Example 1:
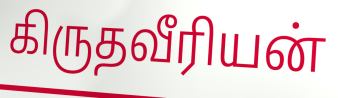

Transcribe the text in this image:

கிருதவீரியன்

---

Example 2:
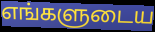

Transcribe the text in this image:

எங்களுடைய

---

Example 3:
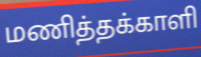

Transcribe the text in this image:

மணித்தக்காளி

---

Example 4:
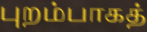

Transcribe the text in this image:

புறம்பாகத்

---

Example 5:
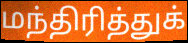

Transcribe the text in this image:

மந்திரித்துக்